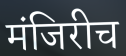
मंजिरीच